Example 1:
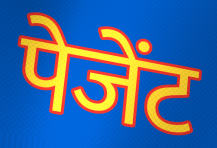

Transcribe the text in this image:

पेजेंट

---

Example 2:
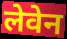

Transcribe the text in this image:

लेवेन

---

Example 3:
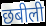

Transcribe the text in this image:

छबीली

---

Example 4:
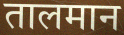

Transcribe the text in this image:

तालमान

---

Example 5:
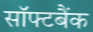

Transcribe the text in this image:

सॉफ्टबैंक